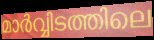
മാർവ്വിടത്തിലെ